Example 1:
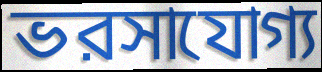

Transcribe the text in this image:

ভরসাযোগ্য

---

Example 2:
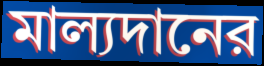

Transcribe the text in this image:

মাল্যদানের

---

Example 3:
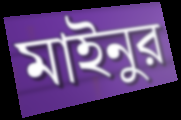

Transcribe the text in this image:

মাইনুর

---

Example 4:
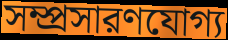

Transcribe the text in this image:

সম্প্রসারণযোগ্য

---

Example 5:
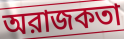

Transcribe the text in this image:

অরাজকতা